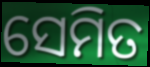
ସେମିତ